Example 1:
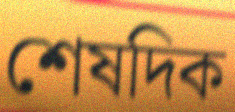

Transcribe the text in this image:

শেষদিক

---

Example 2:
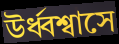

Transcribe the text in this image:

উর্ধ্বশ্বাসে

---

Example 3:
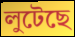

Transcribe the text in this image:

লুটেছে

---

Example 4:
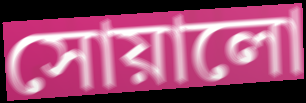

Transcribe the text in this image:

সোয়ালো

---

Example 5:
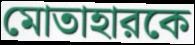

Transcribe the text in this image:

মোতাহারকে